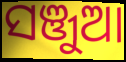
ସଞ୍ଜୁଆ